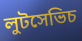
লুটসেভিচ